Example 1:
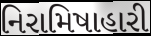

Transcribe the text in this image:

નિરામિષાહારી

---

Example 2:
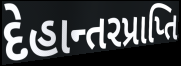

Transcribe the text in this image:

દેહાન્તરપ્રાપ્તિ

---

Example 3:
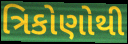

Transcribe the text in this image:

ત્રિકોણોથી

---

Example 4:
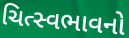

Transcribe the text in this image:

ચિત્સ્વભાવનો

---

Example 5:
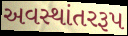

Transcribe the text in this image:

અવસ્થાંતરરૂપ